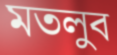
মতলুব